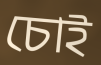
চোই